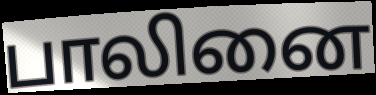
பாலினை